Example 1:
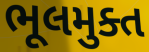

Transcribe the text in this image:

ભૂલમુક્ત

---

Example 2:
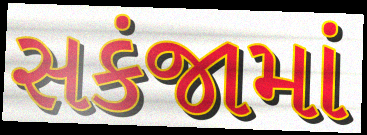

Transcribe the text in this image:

સકંજામાં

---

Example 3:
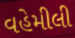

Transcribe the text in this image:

વહેમીલી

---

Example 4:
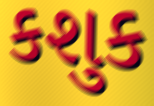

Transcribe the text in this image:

કશુક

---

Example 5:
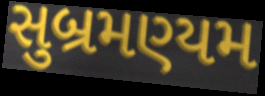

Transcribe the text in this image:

સુબ્રમણ્યમ